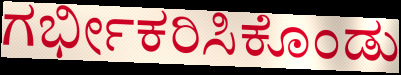
ಗರ್ಭೀಕರಿಸಿಕೊಂಡು